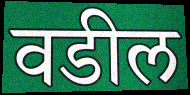
वडील